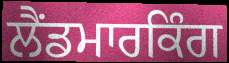
ਲੈਂਡਮਾਰਕਿੰਗ